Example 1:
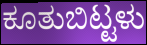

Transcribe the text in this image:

ಕೂತುಬಿಟ್ಟಳು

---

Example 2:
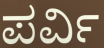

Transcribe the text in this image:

ಪರ್ವಿ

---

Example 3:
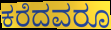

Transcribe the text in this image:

ಕರೆದವರೂ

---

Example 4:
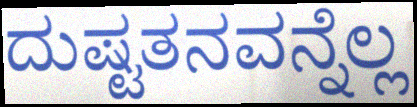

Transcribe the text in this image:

ದುಷ್ಟತನವನ್ನೆಲ್ಲ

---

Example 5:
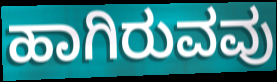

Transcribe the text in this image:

ಹಾಗಿರುವವು